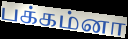
பக்கம்னா